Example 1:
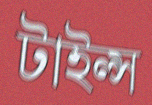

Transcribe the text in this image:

টাইল্স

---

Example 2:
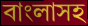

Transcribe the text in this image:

বাংলাসহ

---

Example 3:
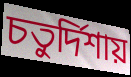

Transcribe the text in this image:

চতুর্দিশায়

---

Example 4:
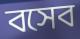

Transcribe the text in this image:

বসেব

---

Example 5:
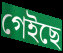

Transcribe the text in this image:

গেইছে